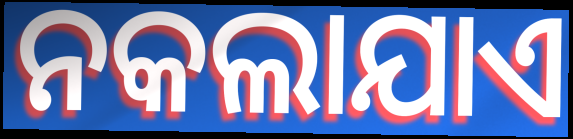
ନକଲାଯାଏ